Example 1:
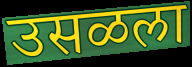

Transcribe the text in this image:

उसळला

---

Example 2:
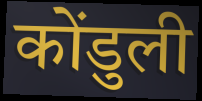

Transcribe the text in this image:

कोंडुली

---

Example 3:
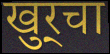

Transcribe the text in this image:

खुर्चा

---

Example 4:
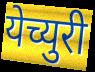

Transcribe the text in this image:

येच्युरी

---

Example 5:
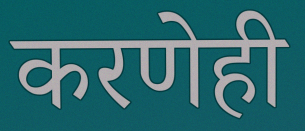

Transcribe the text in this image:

करणेही